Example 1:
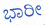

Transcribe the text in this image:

ಭಾರೀ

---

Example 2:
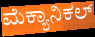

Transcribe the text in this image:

ಮೆಕ್ಯಾನಿಕಲ್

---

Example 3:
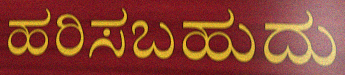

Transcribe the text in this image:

ಹರಿಸಬಹುದು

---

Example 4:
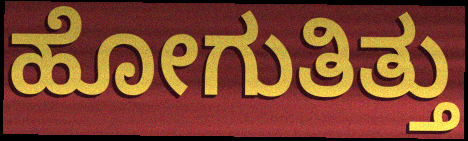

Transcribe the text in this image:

ಹೋಗುತಿತ್ತು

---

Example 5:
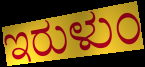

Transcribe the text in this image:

ಇರುಳುಂ